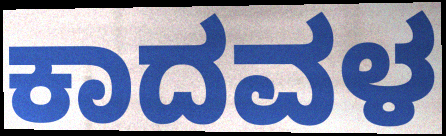
ಕಾದವಳ